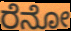
ರೆನೋ